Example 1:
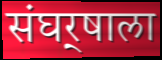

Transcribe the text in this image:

संघर्षाला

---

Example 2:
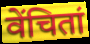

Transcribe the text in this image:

वेंचितां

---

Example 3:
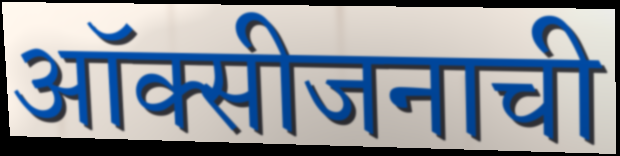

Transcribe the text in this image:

ऑक्सीजनाची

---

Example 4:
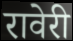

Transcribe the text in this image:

रावेरी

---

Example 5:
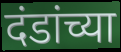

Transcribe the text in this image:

दंडांच्या